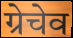
ग्रेचेव